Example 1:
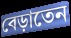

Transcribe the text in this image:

বেড়াতেন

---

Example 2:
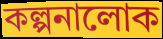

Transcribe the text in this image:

কল্পনালোক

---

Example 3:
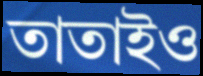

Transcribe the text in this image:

তাতাইও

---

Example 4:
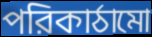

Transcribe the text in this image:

পরিকাঠামো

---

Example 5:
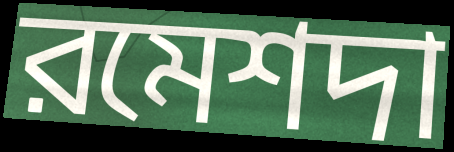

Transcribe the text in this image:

রমেশদা